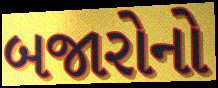
બજારોનો